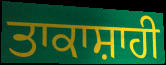
ਤਾਕਾਸ਼ਾਹੀ